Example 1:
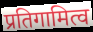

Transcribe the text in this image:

प्रतिगामित्व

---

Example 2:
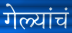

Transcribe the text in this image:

गेल्यांचं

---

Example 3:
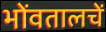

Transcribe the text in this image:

भोंवतालचें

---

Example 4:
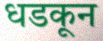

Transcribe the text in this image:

धडकून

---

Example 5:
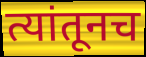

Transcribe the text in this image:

त्यांतूनच